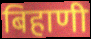
बिहाणी